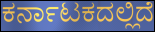
ಕರ್ನಾಟಕದಲ್ಲಿದೆ